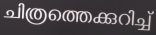
ചിത്രത്തെക്കുറിച്ച്